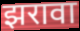
झरावा